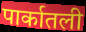
पार्कातली